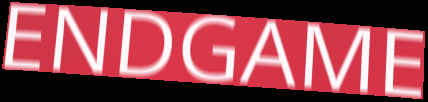
ENDGAME